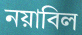
নয়াবিল